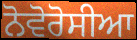
ਨੋਵੋਰੋਸੀਆ